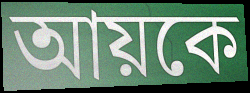
আয়কে